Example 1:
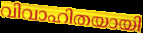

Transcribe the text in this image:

വിവാഹിതയായി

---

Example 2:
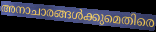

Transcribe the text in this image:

അനാചാരങ്ങൾക്കുമെതിരെ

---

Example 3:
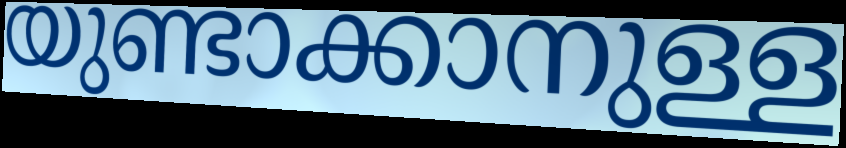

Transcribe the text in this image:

യുണ്ടാക്കാനുള്ള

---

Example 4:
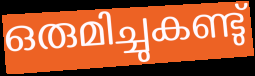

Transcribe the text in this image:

ഒരുമിച്ചുകണ്ടു്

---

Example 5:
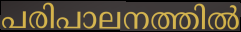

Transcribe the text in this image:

പരിപാലനത്തിൽ